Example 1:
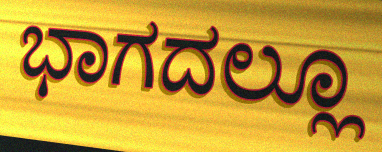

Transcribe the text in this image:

ಭಾಗದಲ್ಲೂ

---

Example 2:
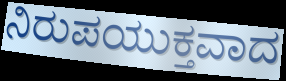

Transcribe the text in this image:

ನಿರುಪಯುಕ್ತವಾದ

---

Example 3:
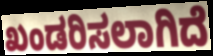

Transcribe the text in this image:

ಖಂಡರಿಸಲಾಗಿದೆ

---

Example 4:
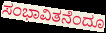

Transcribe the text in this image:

ಸಂಭಾವಿತನೆಂದೂ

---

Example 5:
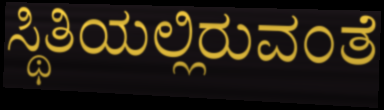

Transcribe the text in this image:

ಸ್ಥಿತಿಯಲ್ಲಿರುವಂತೆ